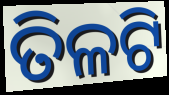
ତିଳଟି